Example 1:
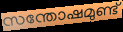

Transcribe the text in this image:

സന്തോഷമുണ്ട്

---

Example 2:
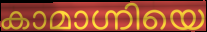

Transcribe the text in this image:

കാമാഗ്നിയെ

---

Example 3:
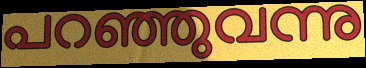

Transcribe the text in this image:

പറഞ്ഞുവന്നു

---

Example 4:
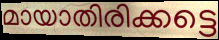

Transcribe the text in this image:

മായാതിരിക്കട്ടെ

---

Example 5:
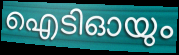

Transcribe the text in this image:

ഐടിഓയും